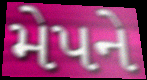
મેપને